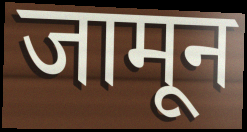
जामून